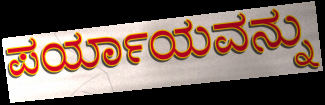
ಪರ್ಯಾಯವನ್ನು